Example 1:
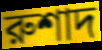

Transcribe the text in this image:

রুশাদ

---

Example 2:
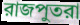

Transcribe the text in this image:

রাজপুতরা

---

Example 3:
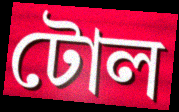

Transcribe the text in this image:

টোল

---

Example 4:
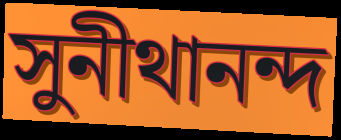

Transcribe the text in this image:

সুনীথানন্দ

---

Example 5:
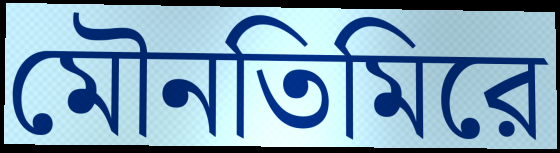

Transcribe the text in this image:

মৌনতিমিরে